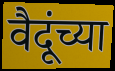
वैदूंच्या